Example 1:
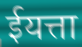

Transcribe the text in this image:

ईयत्ता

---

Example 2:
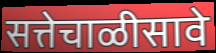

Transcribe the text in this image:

सत्तेचाळीसावे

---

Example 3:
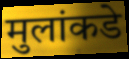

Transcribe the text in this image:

मुलांकडे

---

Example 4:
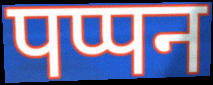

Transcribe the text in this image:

पप्पन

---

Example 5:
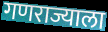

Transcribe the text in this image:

गणराज्याला